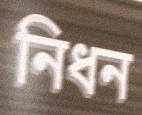
নিধন